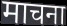
माचना